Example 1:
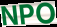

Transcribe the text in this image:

NPO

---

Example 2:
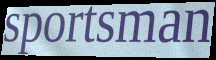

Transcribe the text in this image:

sportsman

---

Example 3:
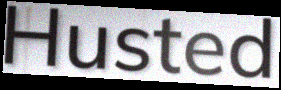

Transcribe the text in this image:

Husted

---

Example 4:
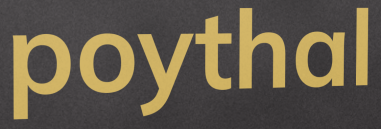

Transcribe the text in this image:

poythal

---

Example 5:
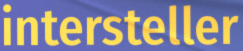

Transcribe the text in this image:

intersteller